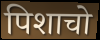
पिशाचो